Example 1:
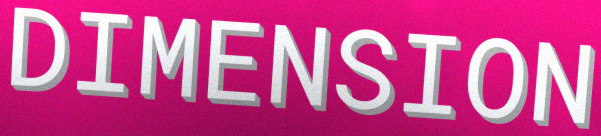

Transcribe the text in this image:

DIMENSION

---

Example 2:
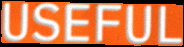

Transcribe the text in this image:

USEFUL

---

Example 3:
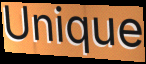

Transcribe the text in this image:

Unique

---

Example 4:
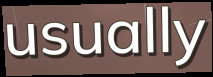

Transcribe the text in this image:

usually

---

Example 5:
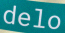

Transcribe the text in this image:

delo